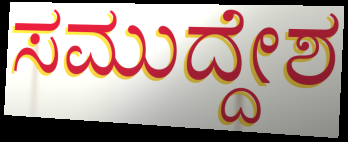
ಸಮುದ್ದೇಶ